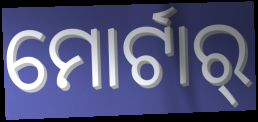
ମୋର୍ଟାର୍